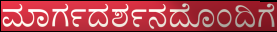
ಮಾರ್ಗದರ್ಶನದೊಂದಿಗೆ